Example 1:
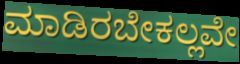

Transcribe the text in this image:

ಮಾಡಿರಬೇಕಲ್ಲವೇ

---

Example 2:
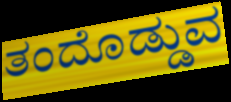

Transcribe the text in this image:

ತಂದೊಡ್ಡುವ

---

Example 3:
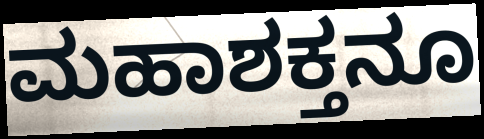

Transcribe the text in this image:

ಮಹಾಶಕ್ತನೂ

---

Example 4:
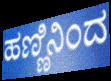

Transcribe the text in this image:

ಹಣ್ಣಿನಿಂದ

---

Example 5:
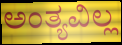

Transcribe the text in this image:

ಅಂತ್ಯವಿಲ್ಲ